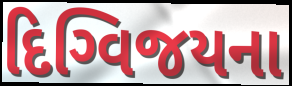
દિગ્વિજયના